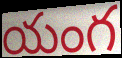
యంగ